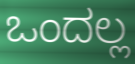
ಒಂದಲ್ಲ